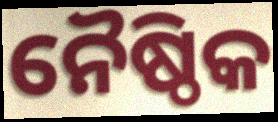
ନୈଷ୍ଠିକ